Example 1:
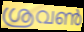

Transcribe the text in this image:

ശ്രവൺ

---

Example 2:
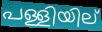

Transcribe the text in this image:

പള്ളിയില്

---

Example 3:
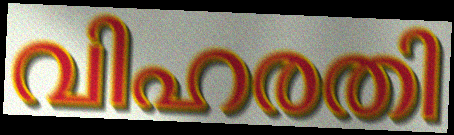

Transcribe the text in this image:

വിഹരതി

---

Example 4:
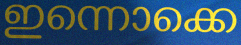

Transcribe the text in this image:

ഇന്നൊക്കെ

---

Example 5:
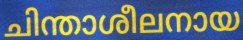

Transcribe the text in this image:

ചിന്താശീലനായ